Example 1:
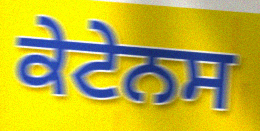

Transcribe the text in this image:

ਕੇਟੇਨਸ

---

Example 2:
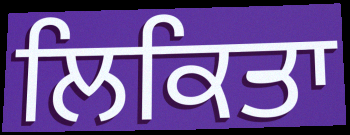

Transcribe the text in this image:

ਲਿਕਿਤਾ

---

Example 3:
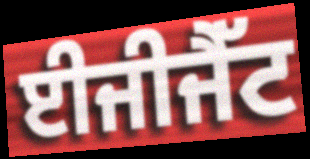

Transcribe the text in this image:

ਈਜੀਜੈੱਟ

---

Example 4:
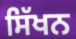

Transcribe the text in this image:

ਸਿੱਖਨ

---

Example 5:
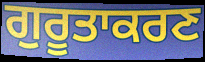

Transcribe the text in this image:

ਗੁਰੂਤਾਕਰਣ